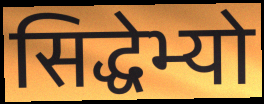
सिद्धेभ्यो